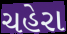
ચહેરા